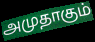
அமுதாகும்